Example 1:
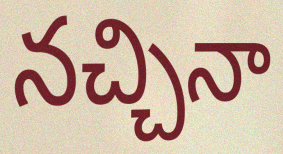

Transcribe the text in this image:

నచ్చినా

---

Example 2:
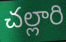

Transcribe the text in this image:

చల్లారి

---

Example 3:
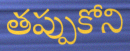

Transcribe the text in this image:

తప్పుకోని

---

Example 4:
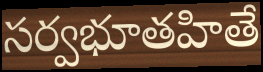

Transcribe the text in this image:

సర్వభూతహితే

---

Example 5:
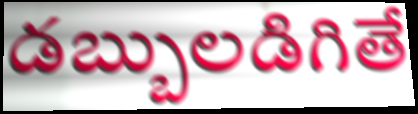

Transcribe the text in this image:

డబ్బులడిగితే